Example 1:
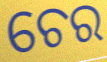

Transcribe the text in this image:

ଚେର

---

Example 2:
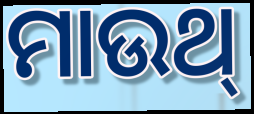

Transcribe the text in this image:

ମାଉଥ୍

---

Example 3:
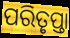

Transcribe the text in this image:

ପରିତୃପ୍ତା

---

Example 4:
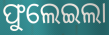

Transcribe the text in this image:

ଫୁଲେଇଲା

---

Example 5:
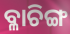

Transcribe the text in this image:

ବ୍ଳାଚିଙ୍ଗ